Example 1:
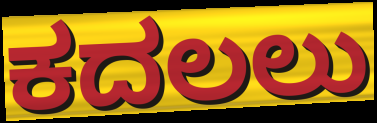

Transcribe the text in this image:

ಕದಲಲು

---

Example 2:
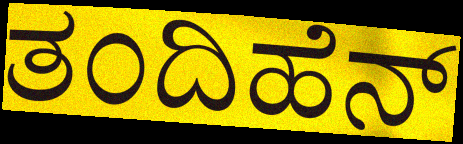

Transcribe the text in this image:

ತಂದಿಹೆನ್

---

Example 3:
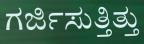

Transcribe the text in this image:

ಗರ್ಜಿಸುತ್ತಿತ್ತು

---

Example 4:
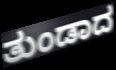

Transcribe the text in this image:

ತುಂಡಾದ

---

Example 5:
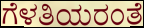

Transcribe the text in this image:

ಗೆಳತಿಯರಂತೆ